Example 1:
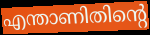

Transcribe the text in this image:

എന്താണിതിന്റെ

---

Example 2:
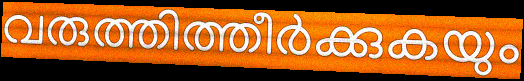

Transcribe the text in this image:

വരുത്തിത്തീർക്കുകയും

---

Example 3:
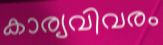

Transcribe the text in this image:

കാര്യവിവരം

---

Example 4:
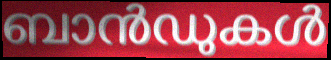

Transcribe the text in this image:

ബാൻഡുകൾ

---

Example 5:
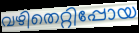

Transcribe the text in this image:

വഴിതെറ്റിപ്പോയ